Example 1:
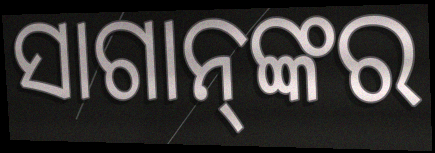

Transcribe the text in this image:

ସାଗାନ୍‌ଙ୍କର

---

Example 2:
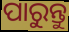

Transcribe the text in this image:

ପାରୁନ୍ତୁ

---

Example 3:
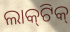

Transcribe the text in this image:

ଲାକ୍‌ଟିକ୍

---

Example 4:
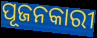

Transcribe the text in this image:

ପୂଜନକାରୀ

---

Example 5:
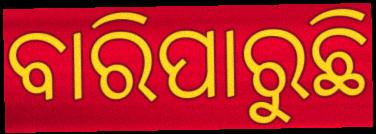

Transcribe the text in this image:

ବାରିପାରୁଛି